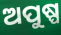
ଅପୁଷ୍ପ